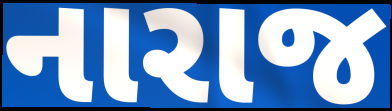
નારાજ